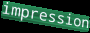
impression